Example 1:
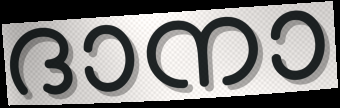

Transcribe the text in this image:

ദാനാ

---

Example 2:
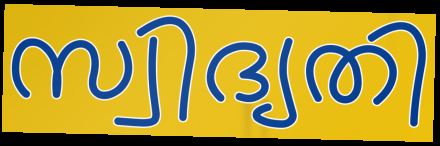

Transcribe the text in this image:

സ്വിദ്യതി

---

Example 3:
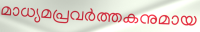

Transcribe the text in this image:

മാധ്യമപ്രവർത്തകനുമായ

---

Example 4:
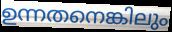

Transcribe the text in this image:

ഉന്നതനെങ്കിലും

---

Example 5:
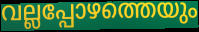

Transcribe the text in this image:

വല്ലപ്പോഴത്തെയും